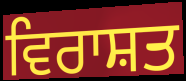
ਵਿਰਾਸ਼ਤ